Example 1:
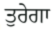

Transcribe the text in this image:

ਤੁਰੇਗਾ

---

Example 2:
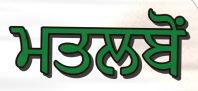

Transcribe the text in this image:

ਮਤਲਬੋਂ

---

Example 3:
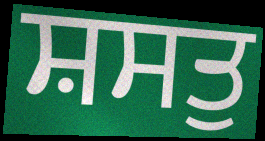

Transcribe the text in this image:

ਸ਼ਸਤੁ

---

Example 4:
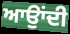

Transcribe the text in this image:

ਆਉਾਂਦੀ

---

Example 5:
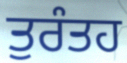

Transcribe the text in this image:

ਤੁਰੰਤਹ